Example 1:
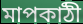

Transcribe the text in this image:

মাপকাঠী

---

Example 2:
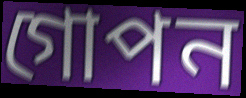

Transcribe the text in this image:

গোপন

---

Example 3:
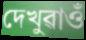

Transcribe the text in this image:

দেখুৱাওঁ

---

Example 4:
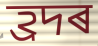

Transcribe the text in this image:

হ্ৰদৰ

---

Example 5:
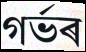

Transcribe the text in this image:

গৰ্ভৰ